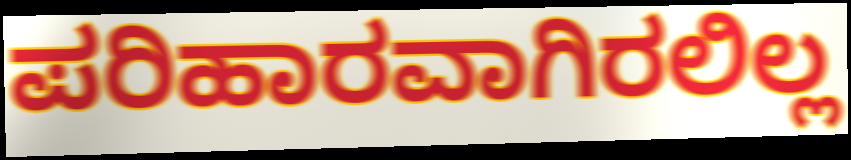
ಪರಿಹಾರವಾಗಿರಲಿಲ್ಲ